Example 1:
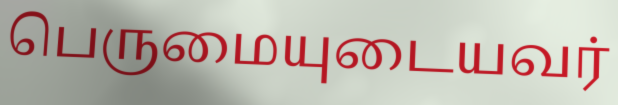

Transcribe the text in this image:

பெருமையுடையவர்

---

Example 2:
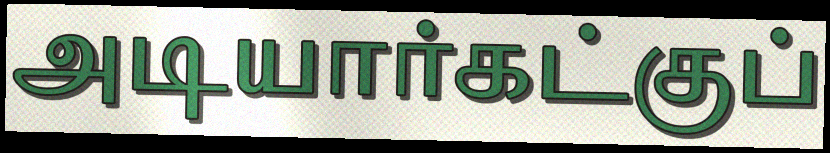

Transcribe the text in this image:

அடியார்கட்குப்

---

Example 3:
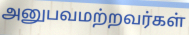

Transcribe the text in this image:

அனுபவமற்றவர்கள்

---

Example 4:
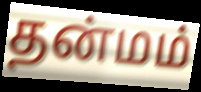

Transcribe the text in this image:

தன்மம்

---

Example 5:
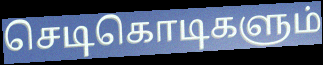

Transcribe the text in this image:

செடிகொடிகளும்